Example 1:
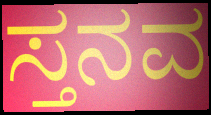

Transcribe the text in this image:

ಸ್ತನವ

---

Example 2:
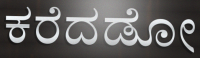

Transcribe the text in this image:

ಕರೆದಡೋ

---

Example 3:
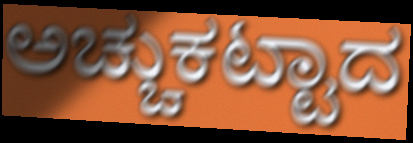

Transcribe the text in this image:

ಅಚ್ಚುಕಟ್ಟಾದ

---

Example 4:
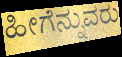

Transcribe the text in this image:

ಹೀಗೆನ್ನುವರು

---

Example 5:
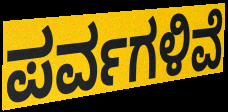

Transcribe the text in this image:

ಪರ್ವಗಳಿವೆ